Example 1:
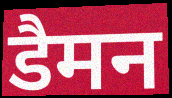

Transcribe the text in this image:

डैमन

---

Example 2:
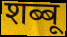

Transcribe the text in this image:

शब्बू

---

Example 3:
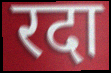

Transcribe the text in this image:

रदा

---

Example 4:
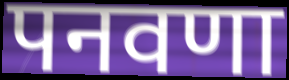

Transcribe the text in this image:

पनवणा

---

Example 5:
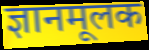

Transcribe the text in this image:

ज्ञानमूलक